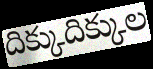
దిక్కుదిక్కుల